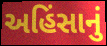
અહિંસાનું